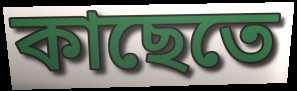
কাছেতে